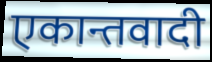
एकान्तवादी